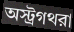
অস্ট্রগথরা